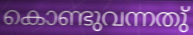
കൊണ്ടുവന്നതു്